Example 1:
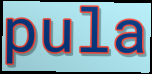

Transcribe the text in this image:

pula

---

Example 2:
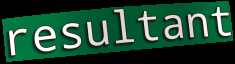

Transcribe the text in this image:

resultant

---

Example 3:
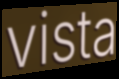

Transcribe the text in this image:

vista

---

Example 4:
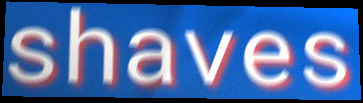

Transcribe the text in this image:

shaves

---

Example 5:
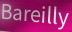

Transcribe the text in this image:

Bareilly